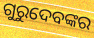
ଗୁରୁଦେବଙ୍କର